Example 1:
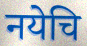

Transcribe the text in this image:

नयेचि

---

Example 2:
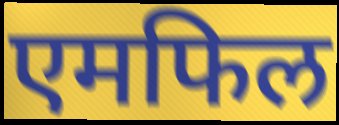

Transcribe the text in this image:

एमफिल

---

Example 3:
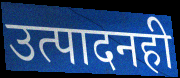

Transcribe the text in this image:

उत्पादनही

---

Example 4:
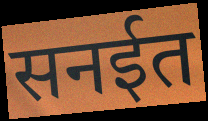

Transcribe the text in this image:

सनईत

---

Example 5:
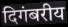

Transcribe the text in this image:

दिगंबरीय